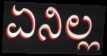
ಏನಿಲ್ಲ